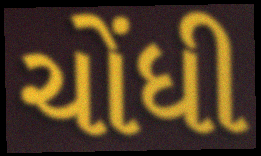
ચોંધી